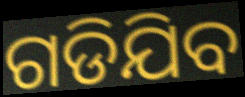
ଗଡିଯିବ